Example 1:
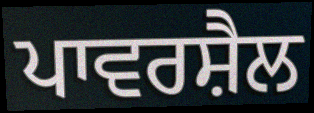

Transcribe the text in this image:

ਪਾਵਰਸ਼ੈਲ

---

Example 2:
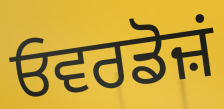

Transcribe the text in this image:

ਓਵਰਡੋਜ਼ਂ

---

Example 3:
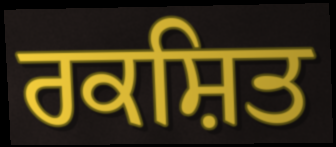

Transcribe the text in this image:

ਰਕਸ਼ਿਤ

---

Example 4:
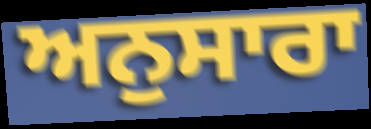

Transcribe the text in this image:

ਅਨੁਸਾਰਾ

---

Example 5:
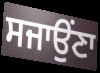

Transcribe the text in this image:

ਸਜਾਉਂਣਾ